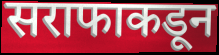
सराफाकडून